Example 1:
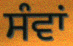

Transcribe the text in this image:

ਸੰਵਾਂ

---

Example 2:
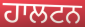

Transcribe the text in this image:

ਹਾਲਟਨ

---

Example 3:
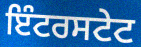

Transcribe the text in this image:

ਇੰਟਰਸਟੇਟ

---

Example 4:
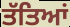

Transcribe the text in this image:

ਤੱਤਿਆਂ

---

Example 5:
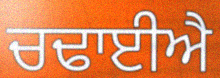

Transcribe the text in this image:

ਚਢਾਈਐ